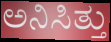
ಅನಿಸಿತ್ತು